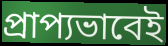
প্রাপ্যভাবেই